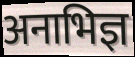
अनाभिज्ञ